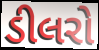
ડીલરો